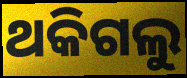
ଥକିଗଲୁ